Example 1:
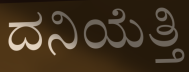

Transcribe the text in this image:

ದನಿಯೆತ್ತಿ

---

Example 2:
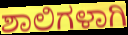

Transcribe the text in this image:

ಶಾಲಿಗಳಾಗಿ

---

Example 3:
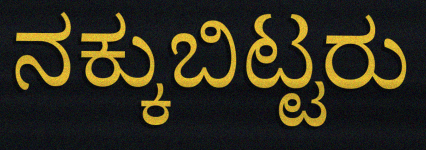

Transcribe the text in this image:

ನಕ್ಕುಬಿಟ್ಟರು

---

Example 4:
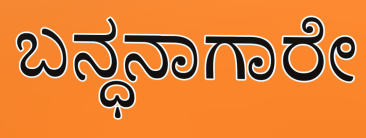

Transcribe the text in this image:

ಬನ್ಧನಾಗಾರೇ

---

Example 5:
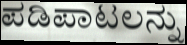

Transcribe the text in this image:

ಪಡಿಪಾಟಲನ್ನು